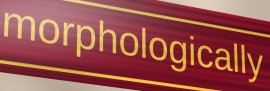
morphologically